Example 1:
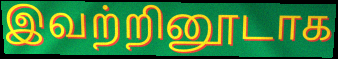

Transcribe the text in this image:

இவற்றினூடாக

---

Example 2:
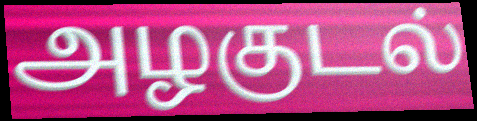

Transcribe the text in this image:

அழகுடல்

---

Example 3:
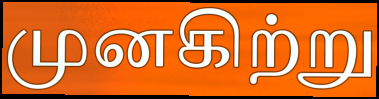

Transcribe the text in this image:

முனகிற்று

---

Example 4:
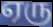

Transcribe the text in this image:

ஏரு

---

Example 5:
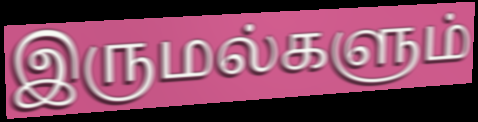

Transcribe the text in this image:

இருமல்களும்